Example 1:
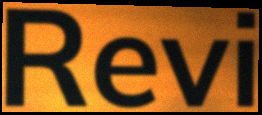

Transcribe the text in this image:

Revi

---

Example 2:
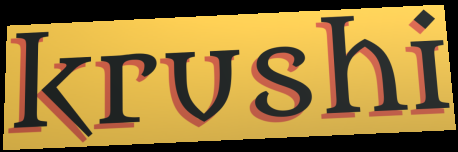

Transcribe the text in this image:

krushi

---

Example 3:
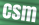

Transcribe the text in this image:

csm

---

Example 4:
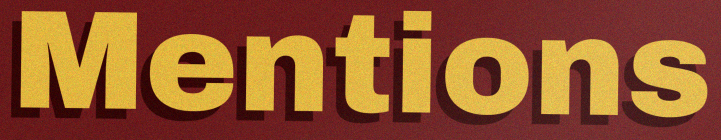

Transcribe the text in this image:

Mentions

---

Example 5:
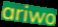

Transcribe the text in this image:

ariwo